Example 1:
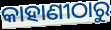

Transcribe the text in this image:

କାହାଣୀଠାରୁ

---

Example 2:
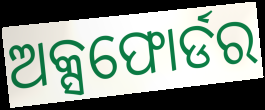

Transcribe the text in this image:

ଅକ୍ସଫୋର୍ଡର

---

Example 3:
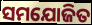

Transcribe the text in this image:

ସମଯୋଜିତ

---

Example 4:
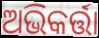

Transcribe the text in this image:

ଅଭିକର୍ତ୍ତା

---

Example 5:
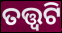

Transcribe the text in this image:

ତତ୍ତ୍ଵଟି